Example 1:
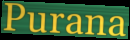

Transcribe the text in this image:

Purana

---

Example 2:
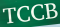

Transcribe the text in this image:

TCCB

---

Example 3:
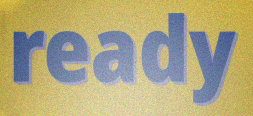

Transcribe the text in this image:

ready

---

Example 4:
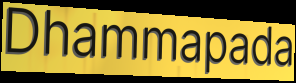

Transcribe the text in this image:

Dhammapada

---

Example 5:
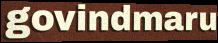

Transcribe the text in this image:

govindmaru